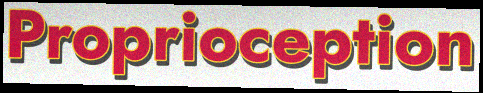
Proprioception